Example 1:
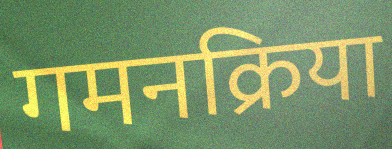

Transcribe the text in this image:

गमनक्रिया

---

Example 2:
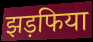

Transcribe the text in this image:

झड़फिया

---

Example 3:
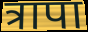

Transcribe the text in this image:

त्रापा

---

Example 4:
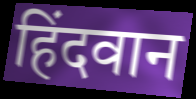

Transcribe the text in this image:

हिंदवान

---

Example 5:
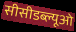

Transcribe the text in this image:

सीसीडब्ल्यूओ